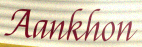
Aankhon